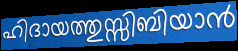
ഹിദായത്തുസ്സിബിയാൻ